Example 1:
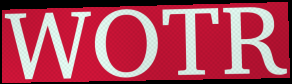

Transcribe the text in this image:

WOTR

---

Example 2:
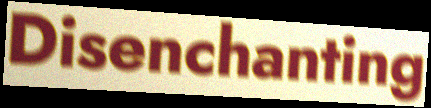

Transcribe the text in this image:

Disenchanting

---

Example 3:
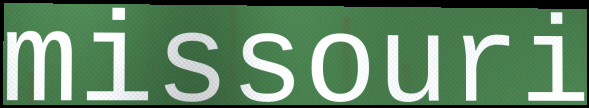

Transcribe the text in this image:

missouri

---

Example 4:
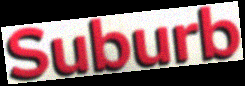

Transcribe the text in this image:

Suburb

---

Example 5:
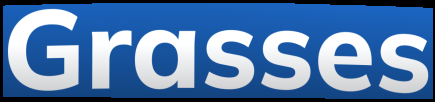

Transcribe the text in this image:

Grasses